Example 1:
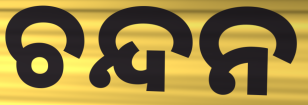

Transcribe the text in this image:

ଚନ୍ଦନ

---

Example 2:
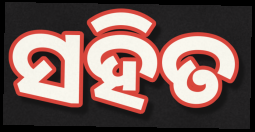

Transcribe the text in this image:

ସହିତ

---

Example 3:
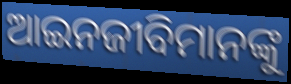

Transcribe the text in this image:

ଆଇନଜୀବିମାନଙ୍କୁ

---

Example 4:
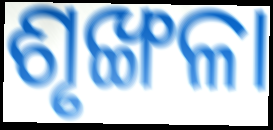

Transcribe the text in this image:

ଶୃଙ୍ଖଳା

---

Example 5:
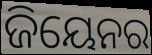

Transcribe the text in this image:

ଜିୟେନର